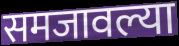
समजावल्या